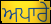
ਅਪਾਰੇ